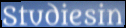
Studiesin